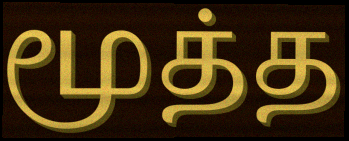
மூத்த